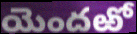
యెందఱో